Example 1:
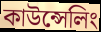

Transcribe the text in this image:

কাউন্সেলিং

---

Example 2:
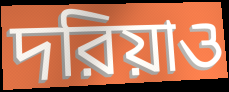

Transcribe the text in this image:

দরিয়াও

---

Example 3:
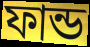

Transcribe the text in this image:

ফান্ড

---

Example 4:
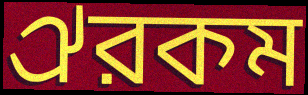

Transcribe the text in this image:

ঐরকম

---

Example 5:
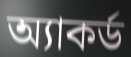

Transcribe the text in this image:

অ্যাকর্ড